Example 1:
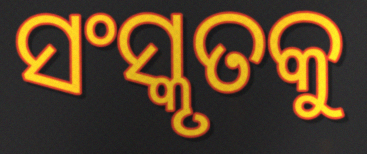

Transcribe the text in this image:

ସଂସ୍କୃତକୁ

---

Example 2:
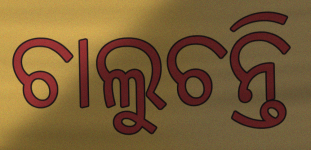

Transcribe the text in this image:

ଚାଲୁଚନ୍ତି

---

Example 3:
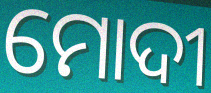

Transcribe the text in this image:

ମୋଦୀ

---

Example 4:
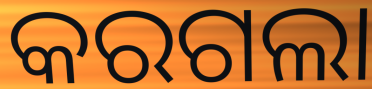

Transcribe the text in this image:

କରଗଲା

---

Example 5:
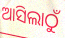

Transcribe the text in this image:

ଆସିଲାଠୁଁ